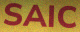
SAIC